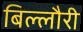
बिल्लौरी